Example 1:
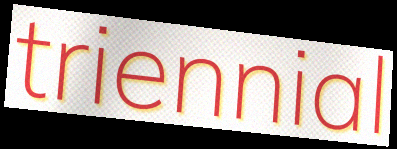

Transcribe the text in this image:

triennial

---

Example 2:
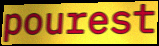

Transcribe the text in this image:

pourest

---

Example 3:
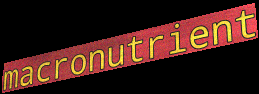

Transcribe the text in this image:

macronutrient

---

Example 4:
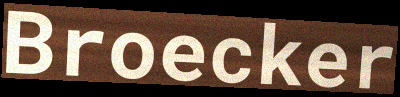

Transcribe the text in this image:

Broecker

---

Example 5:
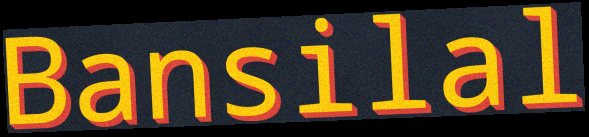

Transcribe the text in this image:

Bansilal